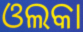
ଓଲକା